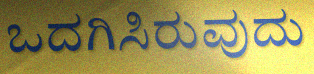
ಒದಗಿಸಿರುವುದು